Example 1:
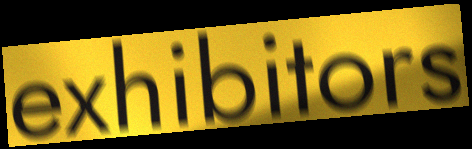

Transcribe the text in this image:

exhibitors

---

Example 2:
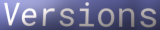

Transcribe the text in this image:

Versions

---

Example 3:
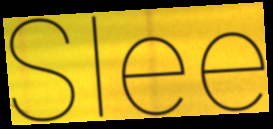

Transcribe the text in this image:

Slee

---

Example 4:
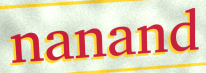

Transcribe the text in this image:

nanand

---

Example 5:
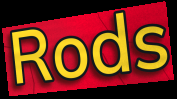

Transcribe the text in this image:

Rods